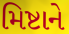
મિષ્ટાને